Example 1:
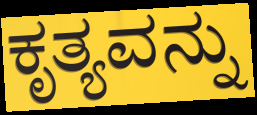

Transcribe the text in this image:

ಕೃತ್ಯವನ್ನು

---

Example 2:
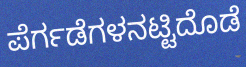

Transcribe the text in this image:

ಪೆರ್ಗಡೆಗಳನಟ್ಟಿದೊಡೆ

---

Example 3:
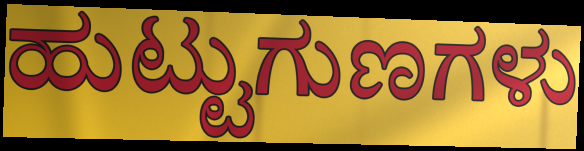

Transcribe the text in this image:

ಹುಟ್ಟುಗುಣಗಳು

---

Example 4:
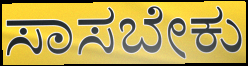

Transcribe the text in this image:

ಸಾಸಬೇಕು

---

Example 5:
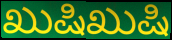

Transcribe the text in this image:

ಖುಷಿಖುಷಿ